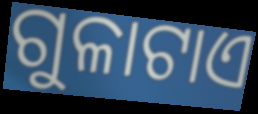
ଗୁଳାଟାଏ